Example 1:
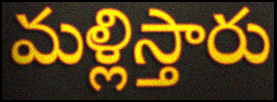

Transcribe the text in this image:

మళ్లిస్తారు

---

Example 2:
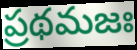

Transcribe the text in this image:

ప్రథమజః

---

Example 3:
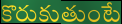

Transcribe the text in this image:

కొరుకుతుంటే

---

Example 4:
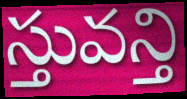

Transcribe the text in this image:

స్తువన్తి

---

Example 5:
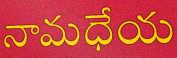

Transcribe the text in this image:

నామధేయ